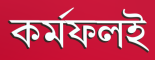
কর্মফলই